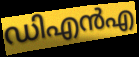
ഡിഎൻഎ